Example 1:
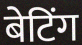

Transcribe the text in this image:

बेटिंग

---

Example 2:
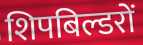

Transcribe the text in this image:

शिपबिल्डरों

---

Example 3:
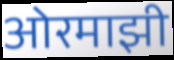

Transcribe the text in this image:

ओरमाझी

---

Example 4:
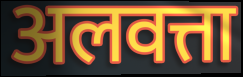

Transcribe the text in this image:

अलवत्ता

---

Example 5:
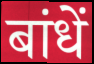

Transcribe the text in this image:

बांधें